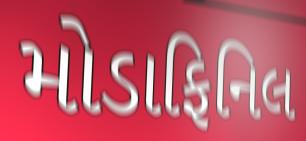
મોડાફિનિલ